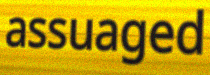
assuaged